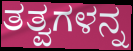
ತತ್ವಗಳನ್ನ